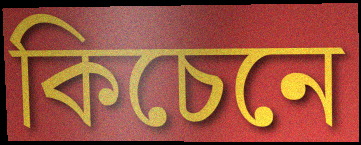
কিচেনে